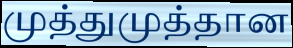
முத்துமுத்தான